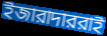
ইজারাদাররাই